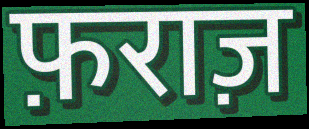
फ़राज़